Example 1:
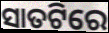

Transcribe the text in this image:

ସାତଟିରେ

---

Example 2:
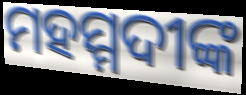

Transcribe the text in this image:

ମହମ୍ମଦୀଙ୍କ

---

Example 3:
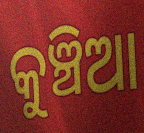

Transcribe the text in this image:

କୁଞ୍ଚିଆ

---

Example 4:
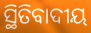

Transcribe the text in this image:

ସ୍ଥିତିବାଦୀୟ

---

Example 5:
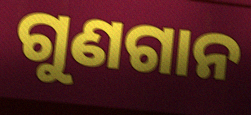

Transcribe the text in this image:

ଗୁଣଗାନ